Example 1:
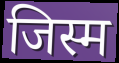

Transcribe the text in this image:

जिस्म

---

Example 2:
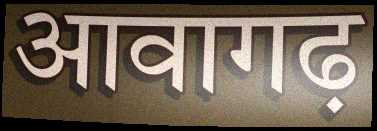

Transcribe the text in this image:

आवागढ़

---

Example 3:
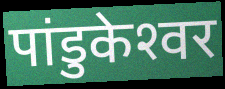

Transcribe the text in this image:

पांडुकेश्वर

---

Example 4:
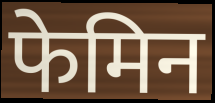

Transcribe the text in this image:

फेमिन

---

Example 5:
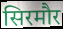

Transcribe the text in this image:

सिरमौर